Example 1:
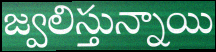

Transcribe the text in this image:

జ్వలిస్తున్నాయి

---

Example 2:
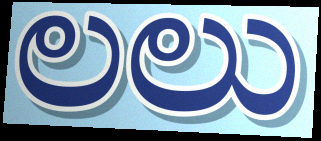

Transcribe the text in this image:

లలు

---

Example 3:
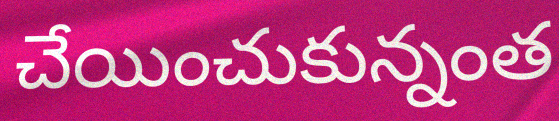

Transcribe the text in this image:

చేయించుకున్నంత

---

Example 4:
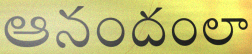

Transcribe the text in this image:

ఆనందంలా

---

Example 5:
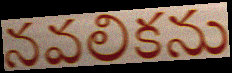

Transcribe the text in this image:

నవలికను